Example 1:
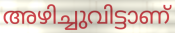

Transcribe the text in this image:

അഴിച്ചുവിട്ടാണ്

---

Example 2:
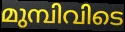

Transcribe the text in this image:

മുമ്പിവിടെ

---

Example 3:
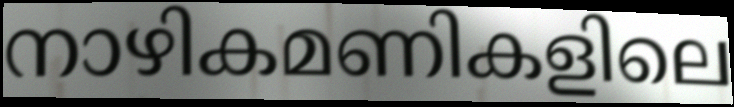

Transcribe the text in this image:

നാഴികമണികളിലെ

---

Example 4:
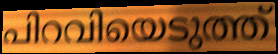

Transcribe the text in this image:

പിറവിയെടുത്ത്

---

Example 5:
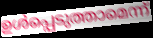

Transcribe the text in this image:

ഉൾപ്പെടുത്താമെന്ന്